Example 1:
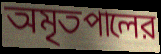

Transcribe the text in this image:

অমৃতপালের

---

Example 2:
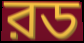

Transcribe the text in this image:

রড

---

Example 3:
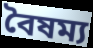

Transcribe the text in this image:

বৈষম্য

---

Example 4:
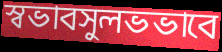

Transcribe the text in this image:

স্বভাবসুলভভাবে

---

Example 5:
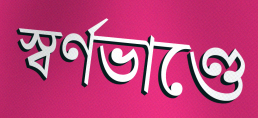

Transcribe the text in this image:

স্বর্ণভাণ্ডে